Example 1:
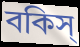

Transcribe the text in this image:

বকিস্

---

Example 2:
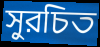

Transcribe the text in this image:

সুরচিত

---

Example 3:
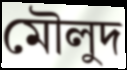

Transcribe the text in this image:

মৌলুদ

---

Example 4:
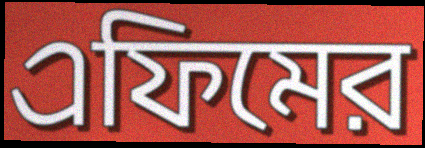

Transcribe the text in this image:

এফিমের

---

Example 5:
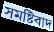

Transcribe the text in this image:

সমষ্টিবাদ